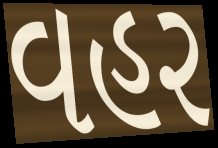
વહર